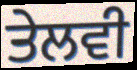
ਤੇਲਵੀ